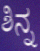
ಶಿನ್ನ